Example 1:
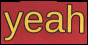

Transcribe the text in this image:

yeah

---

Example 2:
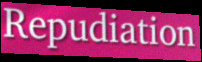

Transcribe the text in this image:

Repudiation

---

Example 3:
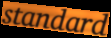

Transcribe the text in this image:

standard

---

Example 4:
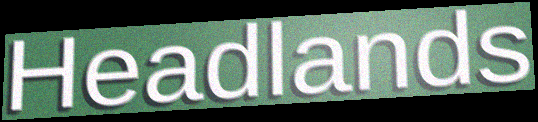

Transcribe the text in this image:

Headlands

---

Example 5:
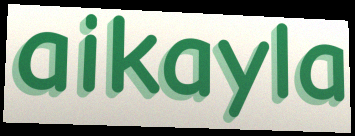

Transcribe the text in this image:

aikayla